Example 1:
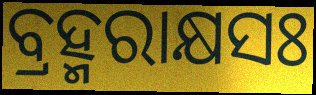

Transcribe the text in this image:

ବ୍ରହ୍ମରାକ୍ଷସଃ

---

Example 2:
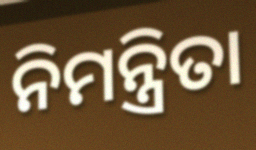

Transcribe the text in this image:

ନିମନ୍ତ୍ରିତା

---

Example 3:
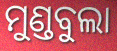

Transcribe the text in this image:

ମୁଣ୍ଡବୁଲା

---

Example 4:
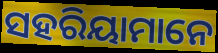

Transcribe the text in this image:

ସହରିୟାମାନେ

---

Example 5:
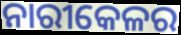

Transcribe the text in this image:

ନାରୀକେଳର